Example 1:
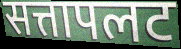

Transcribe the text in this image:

सत्तापलट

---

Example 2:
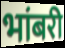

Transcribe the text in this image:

भांबरी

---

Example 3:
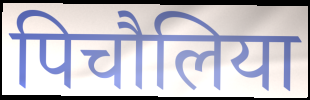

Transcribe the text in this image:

पिचौलिया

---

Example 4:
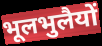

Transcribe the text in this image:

भूलभुलैयों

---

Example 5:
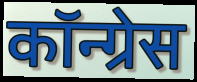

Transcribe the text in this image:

कॉन्ग्रेस